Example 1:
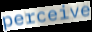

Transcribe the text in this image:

perceive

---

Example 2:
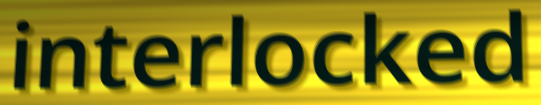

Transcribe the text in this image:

interlocked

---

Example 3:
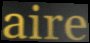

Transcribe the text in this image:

aire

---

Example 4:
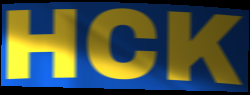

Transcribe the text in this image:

HCK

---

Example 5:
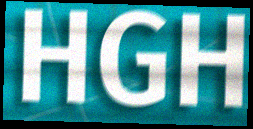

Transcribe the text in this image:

HGH